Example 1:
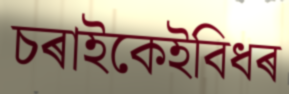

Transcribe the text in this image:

চৰাইকেইবিধৰ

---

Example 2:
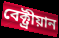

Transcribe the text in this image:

বেক্ট্ৰীয়ান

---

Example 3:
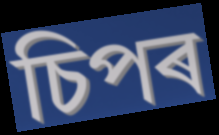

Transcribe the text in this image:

চিপৰ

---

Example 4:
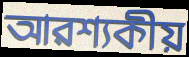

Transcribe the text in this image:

আৱশ্যকীয়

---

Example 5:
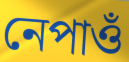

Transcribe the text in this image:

নেপাওঁ